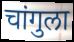
चांगुला